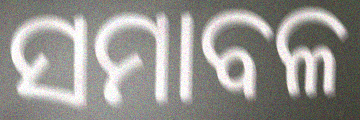
ସମାବଳ